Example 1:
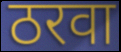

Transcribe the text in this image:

ठरवा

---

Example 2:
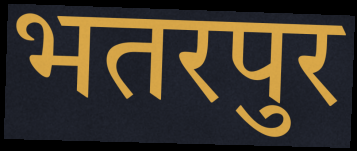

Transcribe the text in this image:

भतरपुर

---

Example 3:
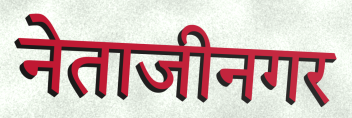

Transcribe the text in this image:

नेताजीनगर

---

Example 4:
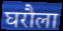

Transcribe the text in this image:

घरौला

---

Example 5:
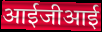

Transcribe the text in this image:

आईजीआई